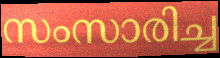
സംസാരിച്ച